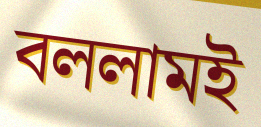
বললামই